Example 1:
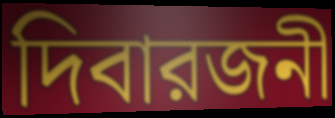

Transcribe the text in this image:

দিবারজনী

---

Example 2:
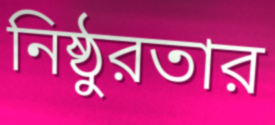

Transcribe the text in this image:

নিষ্ঠুরতার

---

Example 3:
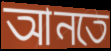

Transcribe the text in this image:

আনতে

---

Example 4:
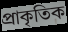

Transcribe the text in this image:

প্রাকৃতিক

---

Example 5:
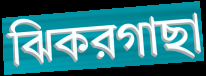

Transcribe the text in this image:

ঝিকরগাছা